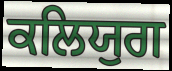
ਕਲਿਯੁਗ